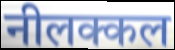
नीलक्कल